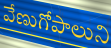
వేణుగోపాలుని